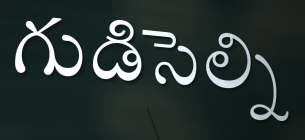
గుడిసెల్ని